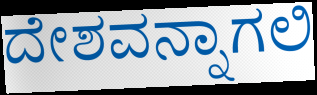
ದೇಶವನ್ನಾಗಲಿ